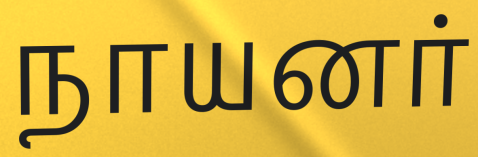
நாயனர்